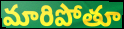
మారిపోతూ